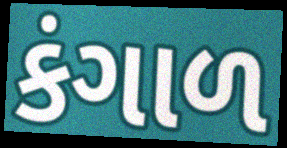
કંગાળ